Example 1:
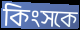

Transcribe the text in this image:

কিংসকে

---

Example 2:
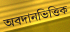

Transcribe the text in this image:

অবদানভিত্তিক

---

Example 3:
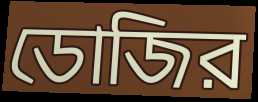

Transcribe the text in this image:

ডোজির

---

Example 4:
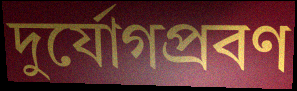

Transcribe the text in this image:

দুর্যোগপ্রবণ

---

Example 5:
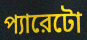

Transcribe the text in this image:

প্যারেটো